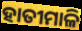
ହାତୀମାଳି